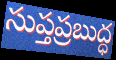
సుప్తప్రబుద్ధ